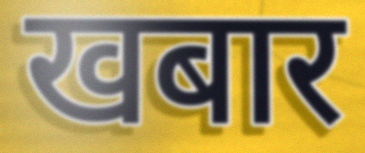
खबार